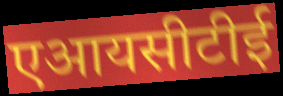
एआयसीटीई